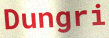
Dungri